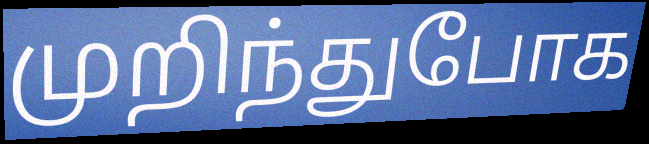
முறிந்துபோக